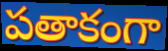
పతాకంగా